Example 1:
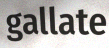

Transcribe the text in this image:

gallate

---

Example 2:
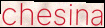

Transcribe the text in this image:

chesina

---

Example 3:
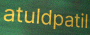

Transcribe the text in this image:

atuldpatil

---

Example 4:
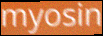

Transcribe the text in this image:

myosin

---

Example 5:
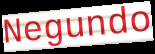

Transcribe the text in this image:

Negundo